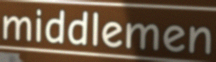
middlemen